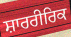
ਸ਼ਾਰਰੀਰਿਕ